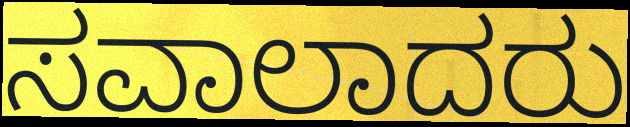
ಸವಾಲಾದರು